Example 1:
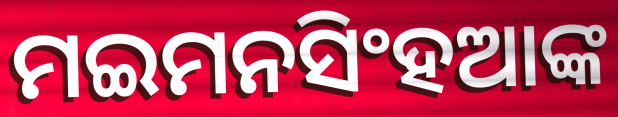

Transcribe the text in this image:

ମଇମନସିଂହଆଙ୍କ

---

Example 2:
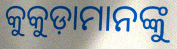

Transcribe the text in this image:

କୁକୁଡ଼ାମାନଙ୍କୁ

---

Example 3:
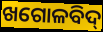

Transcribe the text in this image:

ଖଗୋଳବିଦ୍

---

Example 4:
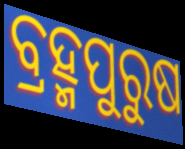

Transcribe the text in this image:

ବ୍ରହ୍ମପୁରୁଷ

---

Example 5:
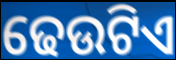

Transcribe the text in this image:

ଢେଉଟିଏ